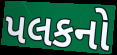
પલકનો